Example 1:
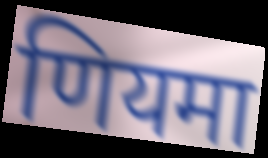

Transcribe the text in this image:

णियमा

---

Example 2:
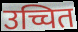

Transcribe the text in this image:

उच्चित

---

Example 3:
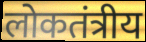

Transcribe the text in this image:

लोकतंत्रीय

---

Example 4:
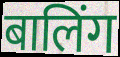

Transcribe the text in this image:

बालिंग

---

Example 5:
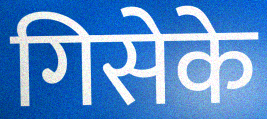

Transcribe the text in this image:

गिसेके